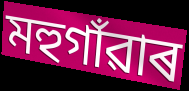
মহুগাঁৱাৰ